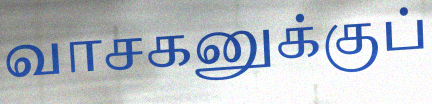
வாசகனுக்குப்